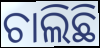
ଚାଲିଛି